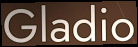
Gladio